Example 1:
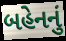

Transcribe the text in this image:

બહેનનું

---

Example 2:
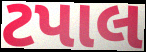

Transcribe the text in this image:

ટપાલ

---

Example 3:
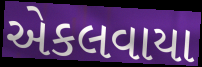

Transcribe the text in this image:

એકલવાયા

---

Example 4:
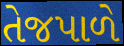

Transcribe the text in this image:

તેજપાળે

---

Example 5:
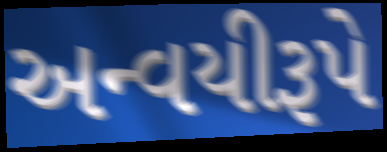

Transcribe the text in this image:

અન્વયીરૂપે